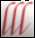
lll